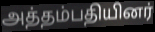
அத்தம்பதியினர்